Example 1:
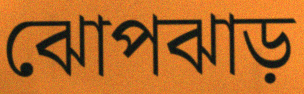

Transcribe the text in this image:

ঝোপঝাড়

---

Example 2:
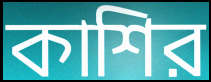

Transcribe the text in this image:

কাশির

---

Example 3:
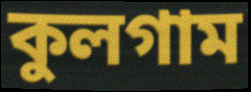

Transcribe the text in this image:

কুলগাম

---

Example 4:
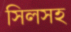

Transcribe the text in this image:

সিলসহ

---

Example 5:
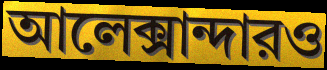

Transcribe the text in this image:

আলেক্সান্দারও